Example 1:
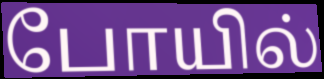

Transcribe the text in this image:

போயில்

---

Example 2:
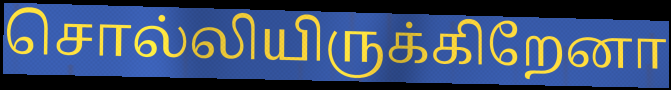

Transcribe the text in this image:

சொல்லியிருக்கிறேனா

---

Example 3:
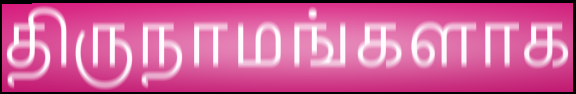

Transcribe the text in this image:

திருநாமங்களாக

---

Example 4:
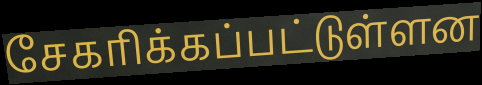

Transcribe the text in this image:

சேகரிக்கப்பட்டுள்ளன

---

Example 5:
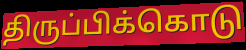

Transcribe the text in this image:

திருப்பிக்கொடு